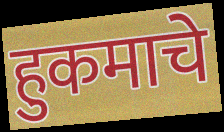
हुकमाचे